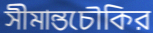
সীমান্তচৌকির